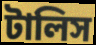
টালিস